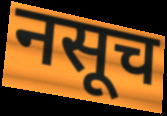
नसूच